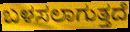
ಬಳಸಲಾಗುತ್ತದೆ